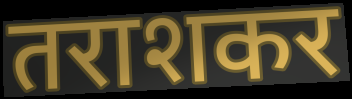
तराशकर